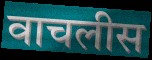
वाचलीस